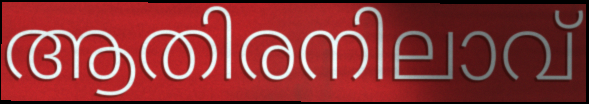
ആതിരനിലാവ്